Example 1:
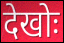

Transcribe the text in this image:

देखोः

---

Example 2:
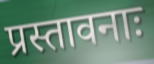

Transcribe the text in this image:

प्रस्तावनाः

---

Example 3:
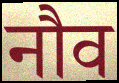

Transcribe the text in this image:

नौव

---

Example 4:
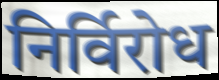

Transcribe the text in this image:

निर्विरोध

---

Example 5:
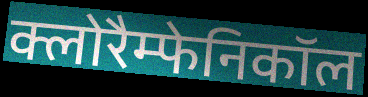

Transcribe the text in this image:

क्लोरैम्फेनिकॉल